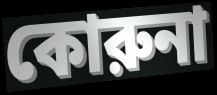
কোরুনা